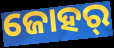
ଜୋହର୍